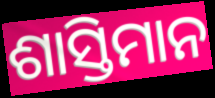
ଶାସ୍ତିମାନ